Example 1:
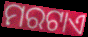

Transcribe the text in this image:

ମରଟାଏ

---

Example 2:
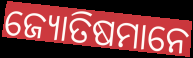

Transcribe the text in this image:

ଜ୍ୟୋତିଷମାନେ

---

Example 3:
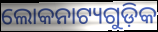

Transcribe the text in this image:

ଲୋକନାଟ୍ୟଗୁଡ଼ିକ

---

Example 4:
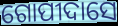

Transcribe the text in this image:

ଗୋପୀଦାସେ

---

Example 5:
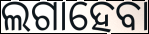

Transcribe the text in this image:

ଲଗାହେବା